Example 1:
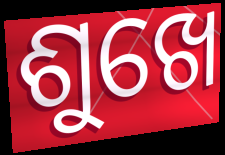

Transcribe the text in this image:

ଶୁଖେ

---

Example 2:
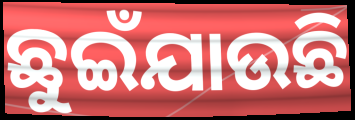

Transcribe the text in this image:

ଛୁଇଁଯାଉଛି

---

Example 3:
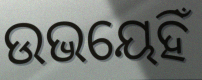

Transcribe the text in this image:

ଉଭୟେହିଁ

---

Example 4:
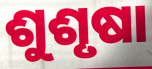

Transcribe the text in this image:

ଶୁଶୃଷା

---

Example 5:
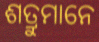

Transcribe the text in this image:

ଶତ୍ରୁମାନେ